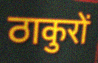
ठाकुरों